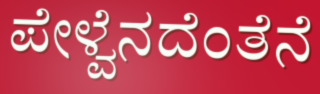
ಪೇಳ್ವೆನದೆಂತೆನೆ